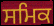
ਸਮਿਕ